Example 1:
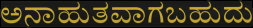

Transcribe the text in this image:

ಅನಾಹುತವಾಗಬಹುದು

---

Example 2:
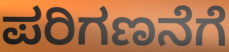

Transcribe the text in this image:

ಪರಿಗಣನೆಗೆ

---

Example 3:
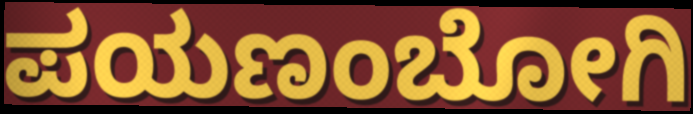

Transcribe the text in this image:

ಪಯಣಂಬೋಗಿ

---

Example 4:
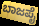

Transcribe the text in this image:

ಬಾಜಪೈ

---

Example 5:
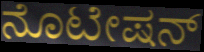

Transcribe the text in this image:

ನೊಟೇಷನ್